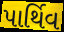
પાર્થિવ